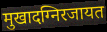
मुखादग्निरजायत